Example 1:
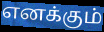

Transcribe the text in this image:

எனக்கும்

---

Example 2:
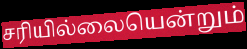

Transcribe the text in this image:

சரியில்லையென்றும்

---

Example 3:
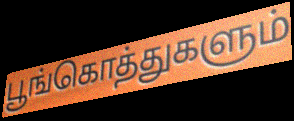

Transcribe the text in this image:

பூங்கொத்துகளும்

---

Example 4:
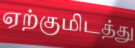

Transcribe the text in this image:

ஏற்குமிடத்து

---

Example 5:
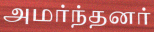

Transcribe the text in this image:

அமர்ந்தனர்